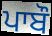
ਪਾਬੌ